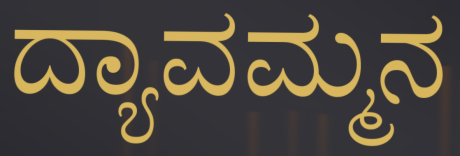
ದ್ಯಾವಮ್ಮನ